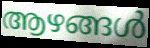
ആഴങ്ങൾ